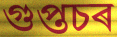
গুপ্তচৰ